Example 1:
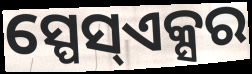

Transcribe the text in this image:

ସ୍ପେସ୍ଏକ୍ସର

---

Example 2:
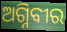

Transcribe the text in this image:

ଅଗ୍ନିବୀର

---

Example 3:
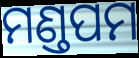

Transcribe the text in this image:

ମଣ୍ଡପମ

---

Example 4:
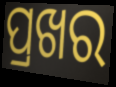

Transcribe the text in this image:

ପ୍ରଖର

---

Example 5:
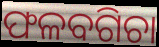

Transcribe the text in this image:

ଫଳବଗିଚା